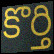
కొర్తి